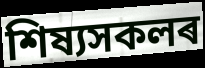
শিষ্যসকলৰ